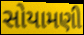
સોયામણી